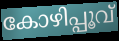
കോഴിപ്പൂവ്